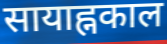
सायाह्नकाल